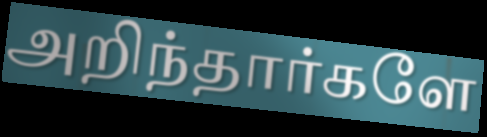
அறிந்தார்களே